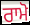
ਰਾਮੋ